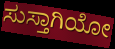
ಸುಸ್ತಾಗಿಯೋ